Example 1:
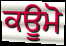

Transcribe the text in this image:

ਕਊਮੋ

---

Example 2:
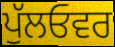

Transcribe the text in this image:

ਪੁੱਲਓਵਰ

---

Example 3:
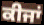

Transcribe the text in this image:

ਕੀਜਾਂ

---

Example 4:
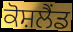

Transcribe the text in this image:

ਕੋਸ਼ਲੈਂਡ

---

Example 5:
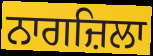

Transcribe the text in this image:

ਨਾਗਜ਼ਿਲਾ